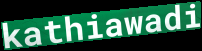
kathiawadi